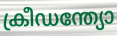
ക്രീഡന്ത്യോ